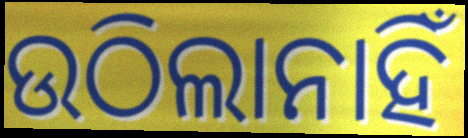
ଉଠିଲାନାହିଁ